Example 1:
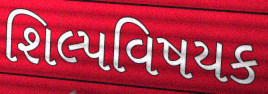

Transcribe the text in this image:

શિલ્પવિષયક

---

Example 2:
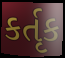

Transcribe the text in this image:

કર્તૃક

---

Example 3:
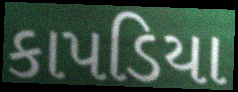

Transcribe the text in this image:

કાપડિયા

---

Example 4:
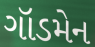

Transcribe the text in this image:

ગૉડમેન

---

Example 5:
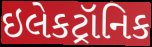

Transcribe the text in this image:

ઇલેકટ્રૉનિક